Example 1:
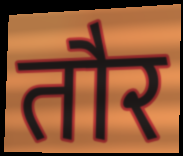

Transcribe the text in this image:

तौर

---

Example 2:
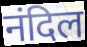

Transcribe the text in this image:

नंदिल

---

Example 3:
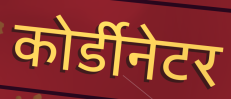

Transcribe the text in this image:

कोर्डीनेटर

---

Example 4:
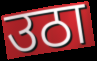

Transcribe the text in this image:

उठा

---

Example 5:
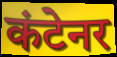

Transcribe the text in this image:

कंटेनर